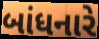
બાંધનારે